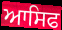
ਆਸਿਫ